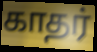
காதர்